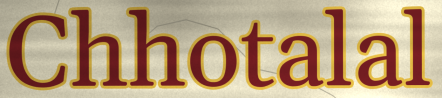
Chhotalal